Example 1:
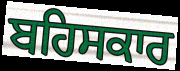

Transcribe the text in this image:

ਬਹਿਸਕਾਰ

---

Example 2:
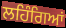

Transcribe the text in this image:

ਲਹਿੰਗਿਆਂ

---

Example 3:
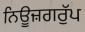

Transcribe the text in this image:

ਨਿਊਜ਼ਗਰੁੱਪ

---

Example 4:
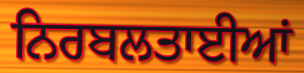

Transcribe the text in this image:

ਨਿਰਬਲਤਾਈਆਂ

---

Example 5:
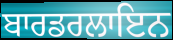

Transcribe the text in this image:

ਬਾਰਡਰਲਾਇਨ